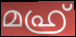
മഹ്ര്